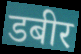
डबीर